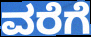
ವರೆಗೆ